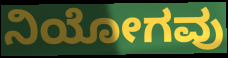
ನಿಯೋಗವು